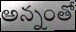
అన్నంతో